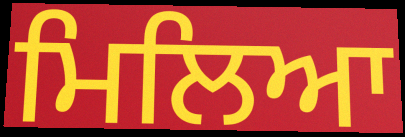
ਮਿਲਿਆ